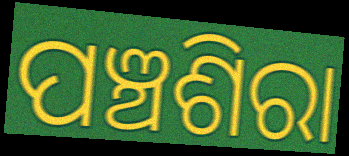
ପଞ୍ଚଶିରା